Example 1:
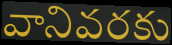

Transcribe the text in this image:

వానివరకు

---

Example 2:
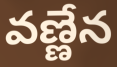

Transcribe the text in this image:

వణ్ణేన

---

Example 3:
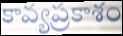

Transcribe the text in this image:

కావ్యప్రకాశం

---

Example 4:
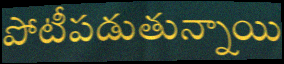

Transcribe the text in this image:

పోటీపడుతున్నాయి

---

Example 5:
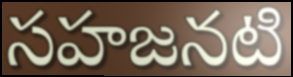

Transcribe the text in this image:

సహజనటి